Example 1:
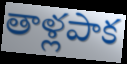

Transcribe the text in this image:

తాళ్లపాక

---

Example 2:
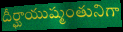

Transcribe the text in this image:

దీర్ఘాయుష్మంతునిగా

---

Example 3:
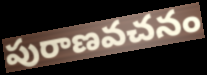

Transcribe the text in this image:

పురాణవచనం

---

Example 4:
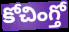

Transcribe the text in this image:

కోచింగ్తో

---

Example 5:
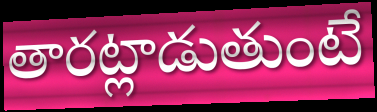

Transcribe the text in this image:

తారట్లాడుతుంటే